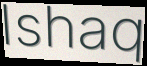
Ishaq